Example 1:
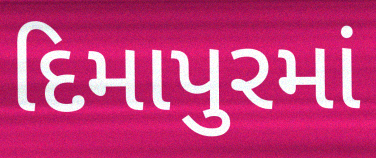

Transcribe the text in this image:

દિમાપુરમાં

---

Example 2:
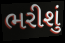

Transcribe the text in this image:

ભરીશું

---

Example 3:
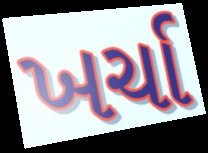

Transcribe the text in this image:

ખર્ચા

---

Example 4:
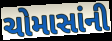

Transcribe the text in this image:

ચોમાસાંની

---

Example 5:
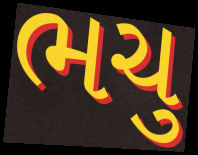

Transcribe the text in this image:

ભચુ